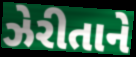
ઝેરીતાને